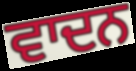
ਵਾਦਨ